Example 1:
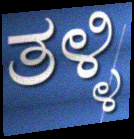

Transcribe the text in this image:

ತಳ್ಳಿ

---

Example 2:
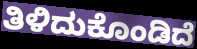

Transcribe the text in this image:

ತಿಳಿದುಕೊಂಡಿದೆ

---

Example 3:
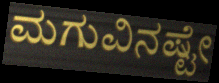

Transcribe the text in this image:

ಮಗುವಿನಷ್ಟೇ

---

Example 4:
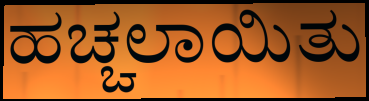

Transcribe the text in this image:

ಹಚ್ಚಲಾಯಿತು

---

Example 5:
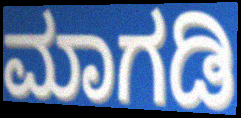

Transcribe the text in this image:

ಮಾಗಡಿ